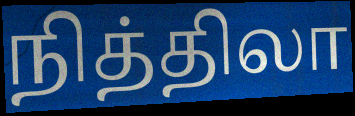
நித்திலா